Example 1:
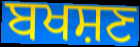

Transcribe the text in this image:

ਬਖਸ਼ਣ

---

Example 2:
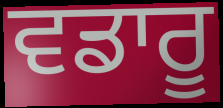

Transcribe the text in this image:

ਵਡਾਰੂ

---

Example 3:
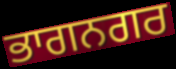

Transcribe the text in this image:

ਭਾਗਨਗਰ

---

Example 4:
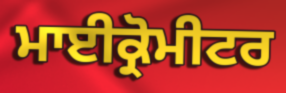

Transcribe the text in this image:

ਮਾਈਕ੍ਰੋਮੀਟਰ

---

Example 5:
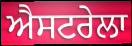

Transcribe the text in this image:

ਐਸਟਰੇਲਾ